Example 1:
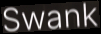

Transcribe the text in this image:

Swank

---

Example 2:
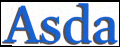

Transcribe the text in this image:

Asda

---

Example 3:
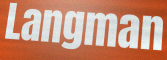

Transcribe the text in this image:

Langman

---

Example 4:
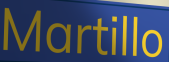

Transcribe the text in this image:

Martillo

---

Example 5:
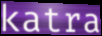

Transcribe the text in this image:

katra